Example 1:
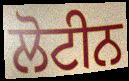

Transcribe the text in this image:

ਲੋਟੀਨ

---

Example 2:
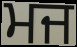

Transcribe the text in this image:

ਮਜ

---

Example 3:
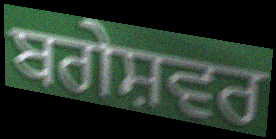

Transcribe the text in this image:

ਬਗੇਸ਼ਵਰ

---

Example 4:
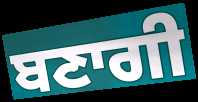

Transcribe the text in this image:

ਬਣਾਗੀ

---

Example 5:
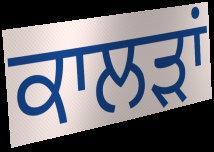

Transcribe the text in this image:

ਕਾਲੜਾਂ